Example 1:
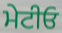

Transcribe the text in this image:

ਮੇਟੀਓ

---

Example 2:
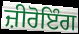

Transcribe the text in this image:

ਜ਼ੀਰੋਇੰਗ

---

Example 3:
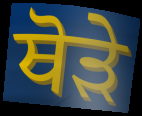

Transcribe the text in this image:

ਥੋਡ਼ੇ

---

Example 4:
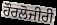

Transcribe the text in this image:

ਹੌਰਲੋਜੀਰੀ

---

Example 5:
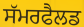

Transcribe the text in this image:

ਸੱਮਰਫੈਲਡ